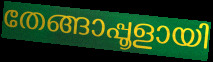
തേങ്ങാപ്പൂളായി